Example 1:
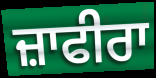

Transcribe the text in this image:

ਜ਼ਾਫੀਰਾ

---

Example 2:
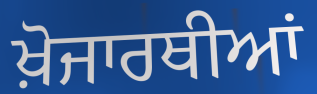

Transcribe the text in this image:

ਖ਼ੋਜਾਰਥੀਆਂ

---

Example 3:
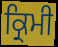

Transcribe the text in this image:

ਕ੍ਰਿਮੀ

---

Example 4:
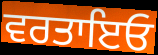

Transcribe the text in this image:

ਵਰਤਾਇਓ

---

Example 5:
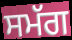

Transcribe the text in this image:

ਸਮੱਗ